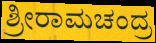
ಶ್ರೀರಾಮಚಂದ್ರ